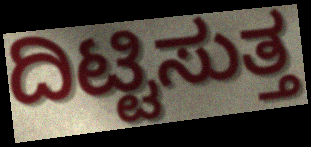
ದಿಟ್ಟಿಸುತ್ತ